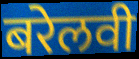
बरेलवी